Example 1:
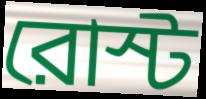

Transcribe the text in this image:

রোস্ট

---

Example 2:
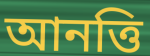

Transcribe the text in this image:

আনত্তি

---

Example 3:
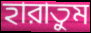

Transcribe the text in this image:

হারাতুম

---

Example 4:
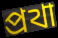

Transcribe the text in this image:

প্রথা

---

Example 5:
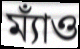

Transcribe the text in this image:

ম্যাঁও